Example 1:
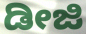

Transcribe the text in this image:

ಡೀಜಿ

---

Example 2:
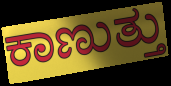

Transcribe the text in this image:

ಕಾಣುತ್ತು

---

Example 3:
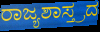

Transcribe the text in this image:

ರಾಜ್ಯಶಾಸ್ತ್ರದ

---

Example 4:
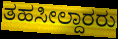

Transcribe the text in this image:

ತಹಸೀಲ್ದಾರರು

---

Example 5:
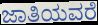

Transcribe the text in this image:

ಜಾತಿಯವರೆ